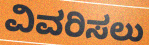
ವಿವರಿಸಲು